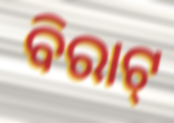
ବିରାଟ୍